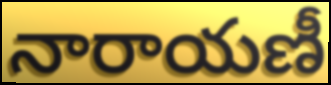
నారాయణీ